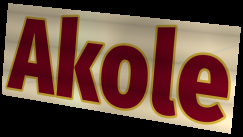
Akole